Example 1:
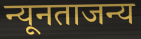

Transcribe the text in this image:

न्यूनताजन्य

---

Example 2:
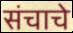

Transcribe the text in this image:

संचाचे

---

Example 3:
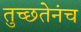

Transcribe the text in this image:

तुच्छतेनंच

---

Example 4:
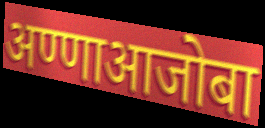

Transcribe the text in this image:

अण्णाआजोबा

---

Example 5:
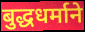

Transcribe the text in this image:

बुद्धधर्माने